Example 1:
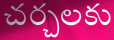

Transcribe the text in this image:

చర్చలకు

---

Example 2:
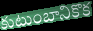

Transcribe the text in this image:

కుటుంబానికొక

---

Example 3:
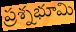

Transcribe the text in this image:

ప్రశ్నభూమి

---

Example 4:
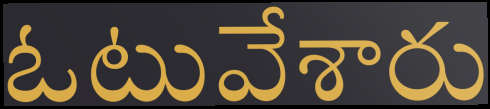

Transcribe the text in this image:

ఓటువేశారు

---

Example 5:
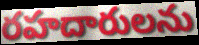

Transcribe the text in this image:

రహదారులను